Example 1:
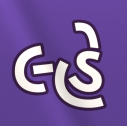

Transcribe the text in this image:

લ્હે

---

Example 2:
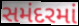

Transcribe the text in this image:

સમંદરમાં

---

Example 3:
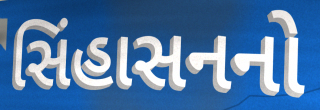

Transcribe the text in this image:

સિંહાસનનો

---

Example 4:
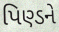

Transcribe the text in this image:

પિણ્ડને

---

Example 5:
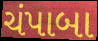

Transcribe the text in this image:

ચંપાબા